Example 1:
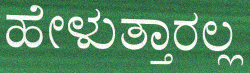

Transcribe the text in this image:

ಹೇಳುತ್ತಾರಲ್ಲ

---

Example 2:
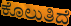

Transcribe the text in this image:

ಕೊಲುತಿದೆ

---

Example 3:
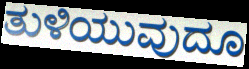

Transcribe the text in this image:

ತುಳಿಯುವುದೂ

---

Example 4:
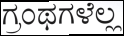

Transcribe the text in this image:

ಗ್ರಂಥಗಳೆಲ್ಲ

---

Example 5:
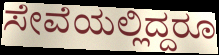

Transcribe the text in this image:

ಸೇವೆಯಲ್ಲಿದ್ದರೂ